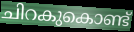
ചിറകുകൊണ്ട്